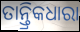
ତାନ୍ତ୍ରିକଧାରା